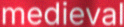
medieval